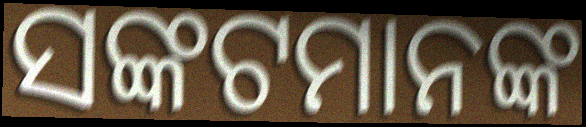
ସଙ୍କଟମାନଙ୍କ